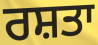
ਰਸ਼ਤਾ